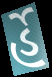
ર્હે